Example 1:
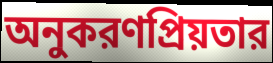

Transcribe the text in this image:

অনুকরণপ্রিয়তার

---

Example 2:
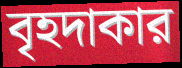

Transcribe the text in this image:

বৃহদাকার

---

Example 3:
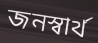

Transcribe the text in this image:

জনস্বার্থ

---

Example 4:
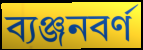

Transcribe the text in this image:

ব্যঞ্জনবর্ণ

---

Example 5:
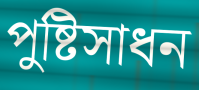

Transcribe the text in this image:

পুষ্টিসাধন